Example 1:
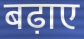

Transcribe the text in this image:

बढ़ाए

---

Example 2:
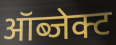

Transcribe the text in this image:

ऑब्जेक्ट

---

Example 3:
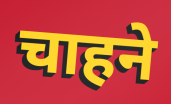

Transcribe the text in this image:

चाहने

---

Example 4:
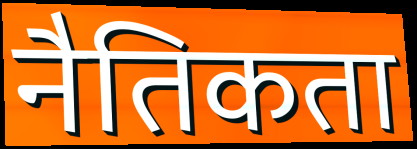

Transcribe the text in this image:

नैतिकता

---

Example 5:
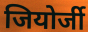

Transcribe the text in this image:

जियोर्जी